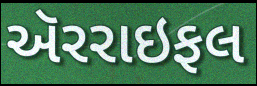
ઍરરાઇફલ